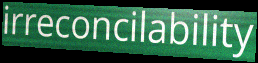
irreconcilability